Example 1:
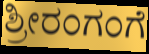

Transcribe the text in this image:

ಶ್ರೀರಂಗಂಗೆ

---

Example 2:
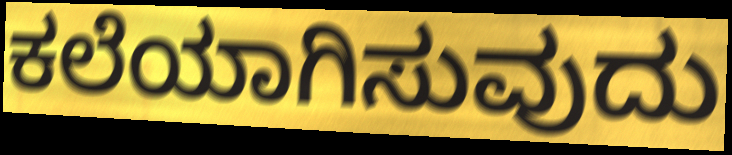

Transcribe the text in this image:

ಕಲೆಯಾಗಿಸುವುದು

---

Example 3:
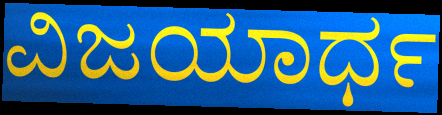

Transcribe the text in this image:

ವಿಜಯಾರ್ಧ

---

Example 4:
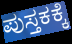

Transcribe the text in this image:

ಪುಸ್ತಕಕ್ಕೆ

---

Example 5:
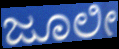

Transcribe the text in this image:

ಜೂಲೀ